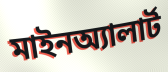
মাইনঅ্যালার্ট